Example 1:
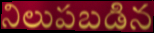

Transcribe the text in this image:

నిలుపబడిన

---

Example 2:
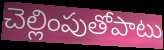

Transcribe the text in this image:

చెల్లింపుతోపాటు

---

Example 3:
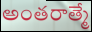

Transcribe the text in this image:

అంతరాత్మే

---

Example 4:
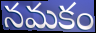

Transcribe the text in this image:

నమకం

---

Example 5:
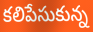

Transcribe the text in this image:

కలిపేసుకున్న